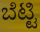
ಬೆಟ್ಟಿ